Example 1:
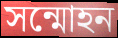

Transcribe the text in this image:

সন্মোহন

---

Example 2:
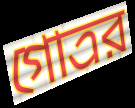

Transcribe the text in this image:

গোত্রর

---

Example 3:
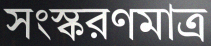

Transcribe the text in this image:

সংস্করণমাত্র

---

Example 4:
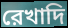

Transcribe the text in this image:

রেখাদি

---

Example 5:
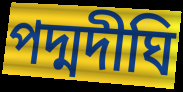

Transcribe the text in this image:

পদ্মদীঘি